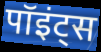
पॉइंट्स